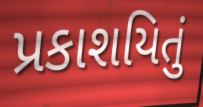
પ્રકાશયિતું